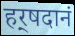
हर्षदानं